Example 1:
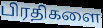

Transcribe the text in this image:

பிரதிகளை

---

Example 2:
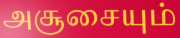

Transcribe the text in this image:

அசூசையும்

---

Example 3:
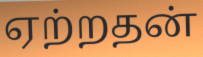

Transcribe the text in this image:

ஏற்றதன்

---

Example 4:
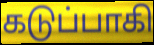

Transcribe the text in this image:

கடுப்பாகி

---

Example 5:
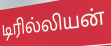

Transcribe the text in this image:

டிரில்லியன்